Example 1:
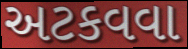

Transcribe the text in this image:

અટકવવા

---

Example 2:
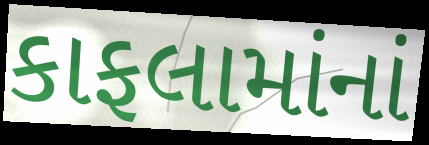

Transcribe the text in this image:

કાફલામાંનાં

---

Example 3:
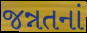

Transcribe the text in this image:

જન્નતનાં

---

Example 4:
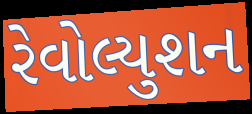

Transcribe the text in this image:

રેવોલ્યુશન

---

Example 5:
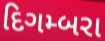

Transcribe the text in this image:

દિગમ્બરા